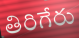
తిరిగేరు